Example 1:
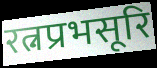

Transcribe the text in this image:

रत्नप्रभसूरि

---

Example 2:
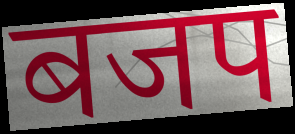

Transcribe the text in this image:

बजप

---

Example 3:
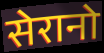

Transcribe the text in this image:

सेरानो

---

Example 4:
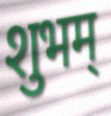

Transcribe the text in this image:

शुभम्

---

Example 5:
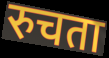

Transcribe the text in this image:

रुचता